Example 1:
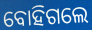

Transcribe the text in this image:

ବୋହିଗଲେ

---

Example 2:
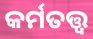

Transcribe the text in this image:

କର୍ମତତ୍ତ୍ୱ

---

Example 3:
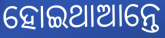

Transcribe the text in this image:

ହୋଇଥାଆନ୍ତେ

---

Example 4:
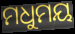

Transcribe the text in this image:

ମଧୁମୟ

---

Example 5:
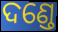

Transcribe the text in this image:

ଦଣ୍ଡେ